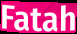
Fatah